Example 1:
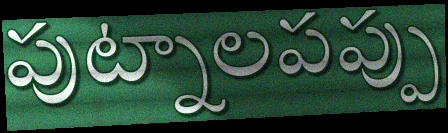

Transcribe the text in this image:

పుట్నాలపప్పు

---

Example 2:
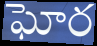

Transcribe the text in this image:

ఘోర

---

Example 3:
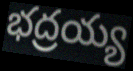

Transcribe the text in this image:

భద్రయ్య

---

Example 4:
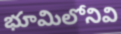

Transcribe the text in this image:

భూమిలోనివి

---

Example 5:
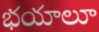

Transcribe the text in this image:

భయాలూ